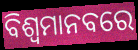
ବିଶ୍ୱମାନବରେ